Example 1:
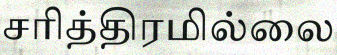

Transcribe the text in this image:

சரித்திரமில்லை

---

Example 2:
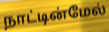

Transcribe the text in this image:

நாட்டின்மேல்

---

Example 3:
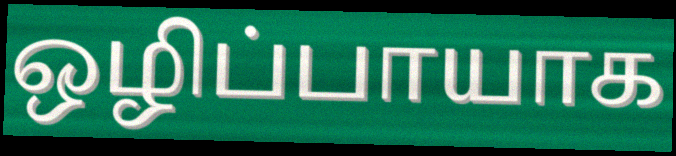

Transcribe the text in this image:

ஒழிப்பாயாக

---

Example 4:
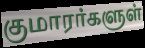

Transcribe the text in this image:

குமாரர்களுள்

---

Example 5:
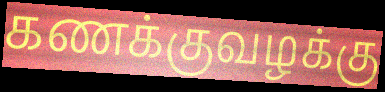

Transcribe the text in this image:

கணக்குவழக்கு